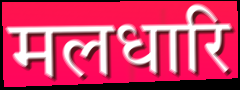
मलधारि